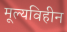
मूल्यविहीन